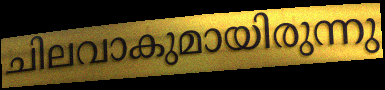
ചിലവാകുമായിരുന്നു